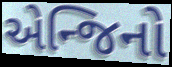
એન્જિનો